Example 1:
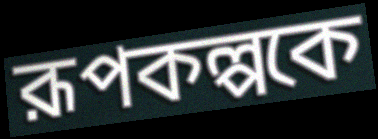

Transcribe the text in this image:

রূপকল্পকে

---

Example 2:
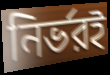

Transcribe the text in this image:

নির্ভরই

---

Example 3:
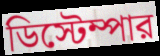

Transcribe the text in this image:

ডিস্টেম্পার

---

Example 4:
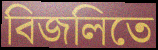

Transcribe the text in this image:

বিজলিতে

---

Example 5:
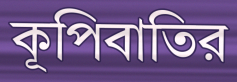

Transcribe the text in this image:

কূপিবাতির